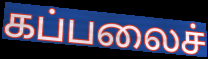
கப்பலைச்